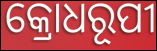
କ୍ରୋଧରୂପୀ